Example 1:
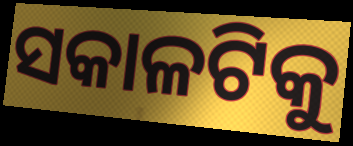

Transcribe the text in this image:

ସକାଳଟିକୁ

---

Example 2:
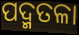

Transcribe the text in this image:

ପଦ୍ମତଳା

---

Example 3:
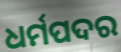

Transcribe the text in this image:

ଧର୍ମପଦର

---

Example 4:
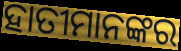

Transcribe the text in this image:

ହାତୀମାନଙ୍କର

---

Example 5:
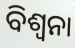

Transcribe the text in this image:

ବିଶ୍ୱନା